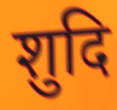
शुदि